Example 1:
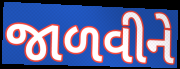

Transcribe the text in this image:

જાળવીને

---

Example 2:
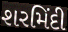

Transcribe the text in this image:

શરમિંદી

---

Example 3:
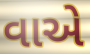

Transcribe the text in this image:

વાએ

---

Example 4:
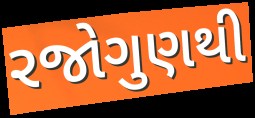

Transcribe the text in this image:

રજોગુણથી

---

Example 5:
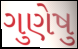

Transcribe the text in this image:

ગુણેષુ